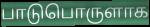
பாடுபொருளாக